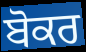
ਬੋਕਰ